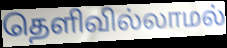
தெளிவில்லாமல்